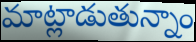
మాట్లాడుతున్నాం